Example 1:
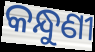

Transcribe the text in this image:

କନ୍ଧୁଣୀ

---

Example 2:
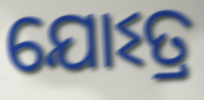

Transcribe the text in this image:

ଯୋଽତ୍ର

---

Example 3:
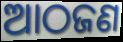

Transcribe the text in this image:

ଆଠଜଣ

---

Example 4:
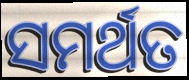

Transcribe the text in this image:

ସମର୍ଥତ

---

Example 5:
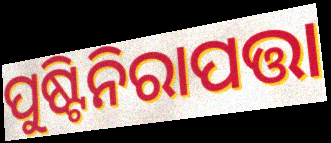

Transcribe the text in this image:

ପୁଷ୍ଟିନିରାପତ୍ତା